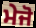
ਮੇਜੋ